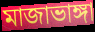
মাজাভাঙ্গা